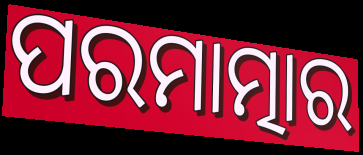
ପରମାତ୍ମାର